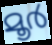
മൂർ